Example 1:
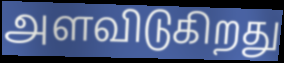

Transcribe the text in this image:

அளவிடுகிறது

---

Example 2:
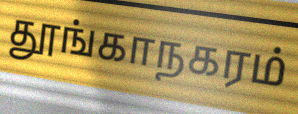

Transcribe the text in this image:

தூங்காநகரம்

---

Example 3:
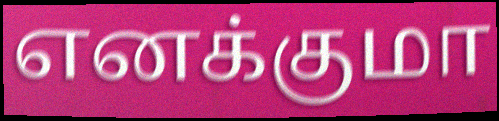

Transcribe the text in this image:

எனக்குமா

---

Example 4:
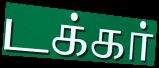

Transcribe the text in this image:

டக்கர்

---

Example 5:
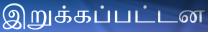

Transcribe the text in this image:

இறுக்கப்பட்டன